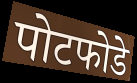
पोटफोडे